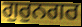
ਗੁਰੁਨਗਰ